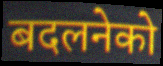
बदलनेको